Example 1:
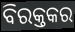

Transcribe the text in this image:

ବିରକ୍ତକର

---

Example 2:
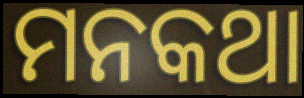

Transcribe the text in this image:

ମନକଥା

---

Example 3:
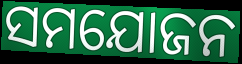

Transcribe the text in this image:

ସମଯୋଜନ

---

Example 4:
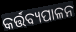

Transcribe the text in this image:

କର୍ତ୍ତବ୍ୟପାଳନ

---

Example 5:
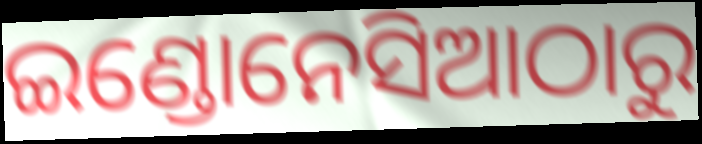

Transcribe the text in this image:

ଇଣ୍ଡୋନେସିଆଠାରୁ